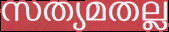
സത്യമതല്ല